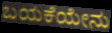
ಬಯಕೆಯೇನು